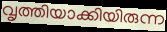
വൃത്തിയാക്കിയിരുന്ന